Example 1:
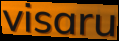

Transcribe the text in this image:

visaru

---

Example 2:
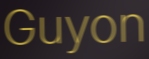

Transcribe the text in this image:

Guyon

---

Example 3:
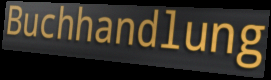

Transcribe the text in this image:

Buchhandlung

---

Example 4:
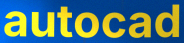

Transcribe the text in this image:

autocad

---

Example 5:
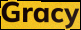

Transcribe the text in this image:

Gracy